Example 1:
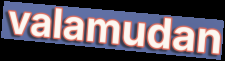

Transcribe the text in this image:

valamudan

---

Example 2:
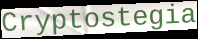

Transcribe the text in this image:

Cryptostegia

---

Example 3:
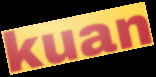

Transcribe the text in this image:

kuan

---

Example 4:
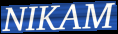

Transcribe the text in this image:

NIKAM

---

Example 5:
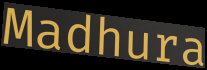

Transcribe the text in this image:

Madhura